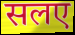
सलए